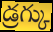
డ్రగ్కు